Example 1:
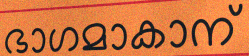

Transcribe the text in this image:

ഭാഗമാകാന്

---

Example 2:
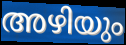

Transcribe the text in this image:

അഴിയും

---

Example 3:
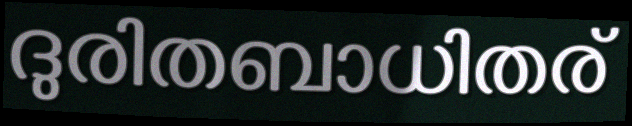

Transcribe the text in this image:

ദുരിതബാധിതര്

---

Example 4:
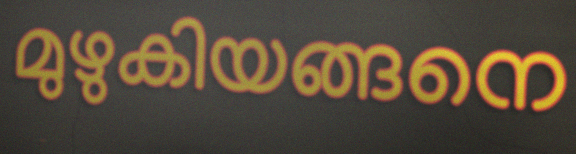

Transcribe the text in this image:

മുഴുകിയങ്ങനെ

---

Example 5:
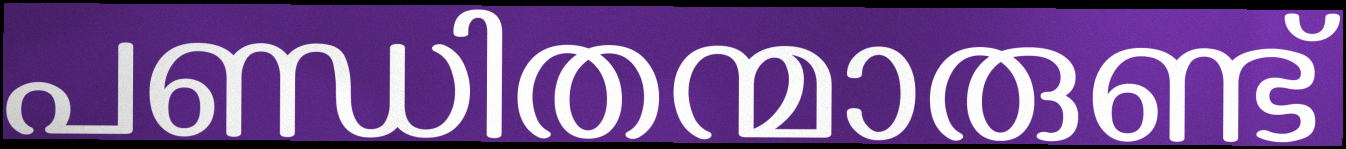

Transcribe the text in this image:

പണ്ഡിതന്മാരുണ്ട്